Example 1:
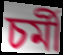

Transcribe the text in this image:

চর্মী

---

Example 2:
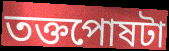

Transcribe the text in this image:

তক্তপোষটা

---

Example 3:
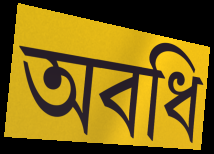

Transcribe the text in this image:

অবধি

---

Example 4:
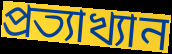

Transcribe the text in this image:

প্রত্যাখ্যান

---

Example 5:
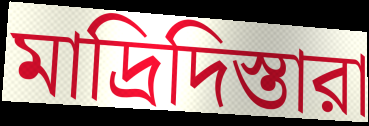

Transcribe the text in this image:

মাদ্রিদিস্তারা